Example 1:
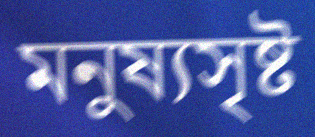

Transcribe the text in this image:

মনুষ্যসৃষ্ট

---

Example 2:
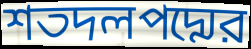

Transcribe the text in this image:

শতদলপদ্মের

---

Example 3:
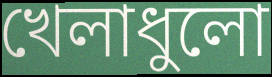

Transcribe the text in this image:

খেলাধুলো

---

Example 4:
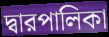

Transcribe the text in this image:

দ্বারপালিকা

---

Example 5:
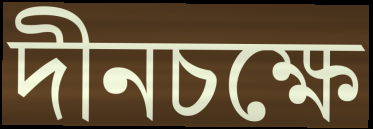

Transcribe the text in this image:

দীনচক্ষে